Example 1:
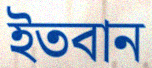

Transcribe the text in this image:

ইতবান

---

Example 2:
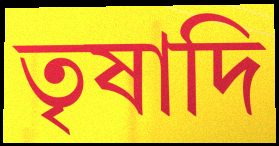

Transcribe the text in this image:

তৃষাদি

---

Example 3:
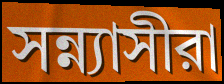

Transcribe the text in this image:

সন্ন্যাসীরা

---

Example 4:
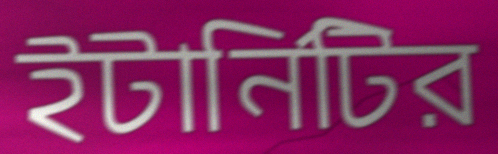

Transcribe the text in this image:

ইটার্নিটির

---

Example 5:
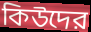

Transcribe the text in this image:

কিউদের